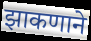
झाकणाने